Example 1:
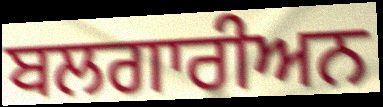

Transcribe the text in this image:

ਬਲਗਾਰੀਅਨ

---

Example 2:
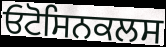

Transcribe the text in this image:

ਓਟੋਸਿਨਕਲਸ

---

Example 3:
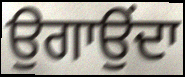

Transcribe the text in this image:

ਉਗਾਉਂਦਾ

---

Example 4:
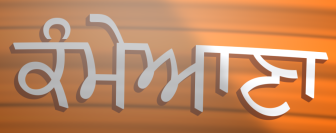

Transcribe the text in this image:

ਕੰਮੇਆਣਾ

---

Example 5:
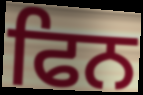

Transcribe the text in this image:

ਫਿਨ